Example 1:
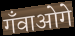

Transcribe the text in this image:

गँवाओगे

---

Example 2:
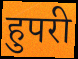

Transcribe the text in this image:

हुपरी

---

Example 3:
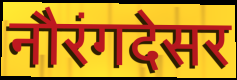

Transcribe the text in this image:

नौरंगदेसर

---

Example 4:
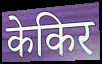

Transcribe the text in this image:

केकिर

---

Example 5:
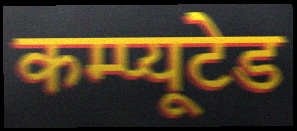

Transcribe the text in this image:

कम्प्यूटेड